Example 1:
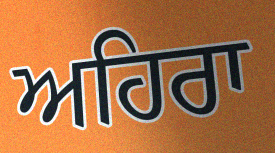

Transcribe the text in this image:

ਅਹਿਰਾ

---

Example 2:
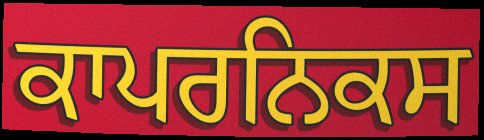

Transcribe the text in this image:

ਕਾਪਰਨਿਕਸ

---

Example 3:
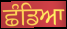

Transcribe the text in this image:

ਛੰਡਿਆ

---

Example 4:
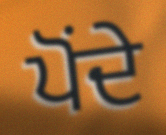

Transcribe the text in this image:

ਪੋਂਦੇ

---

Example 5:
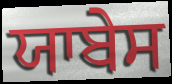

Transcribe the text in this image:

ਯਾਬੇਸ